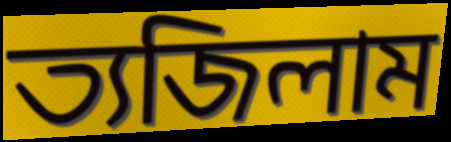
ত্যজিলাম